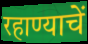
रहाण्याचें